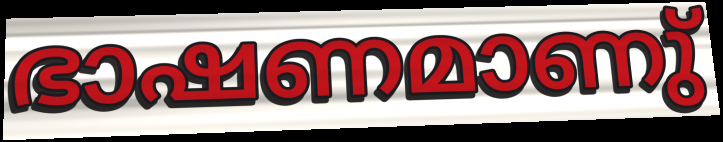
ഭാഷണമാണു്